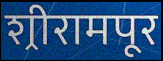
श्रीरामपूर